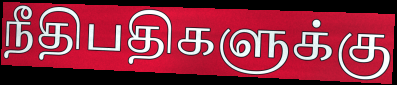
நீதிபதிகளுக்கு